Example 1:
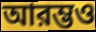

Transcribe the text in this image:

আরম্ভও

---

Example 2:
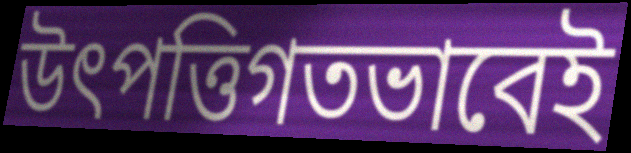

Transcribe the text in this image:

উৎপত্তিগতভাবেই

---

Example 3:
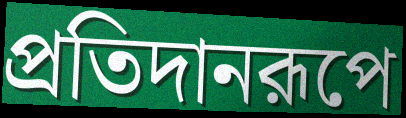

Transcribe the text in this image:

প্রতিদানরূপে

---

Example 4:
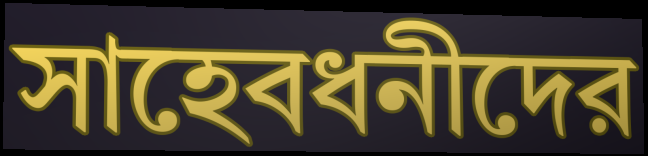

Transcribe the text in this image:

সাহেবধনীদের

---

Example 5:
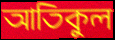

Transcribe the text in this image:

আতিকুল